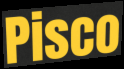
Pisco